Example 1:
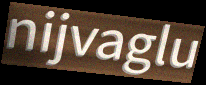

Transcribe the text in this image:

nijvaglu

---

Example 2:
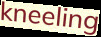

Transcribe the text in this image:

kneeling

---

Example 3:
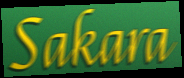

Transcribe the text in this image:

Sakara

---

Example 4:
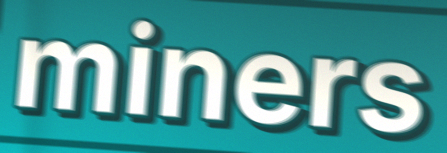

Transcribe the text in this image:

miners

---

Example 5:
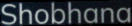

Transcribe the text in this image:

Shobhana